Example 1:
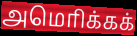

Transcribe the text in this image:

அமெரிக்கக்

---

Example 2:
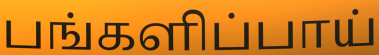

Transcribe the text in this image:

பங்களிப்பாய்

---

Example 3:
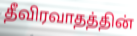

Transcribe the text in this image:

தீவிரவாதத்தின்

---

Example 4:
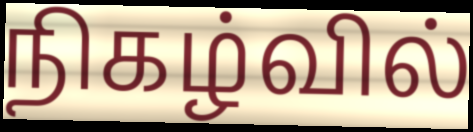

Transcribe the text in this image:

நிகழ்வில்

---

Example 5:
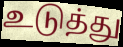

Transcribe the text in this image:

உடுத்து